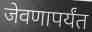
जेवणापर्यंत